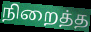
நிறைத்த